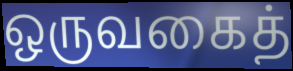
ஒருவகைத்